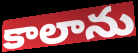
కాలాను